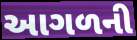
આગળની